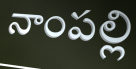
నాంపల్లి